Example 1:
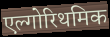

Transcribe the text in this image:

एल्गोरिथमिक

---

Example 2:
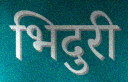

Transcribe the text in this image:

भिदुरी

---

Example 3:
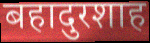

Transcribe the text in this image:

बहादुरशाह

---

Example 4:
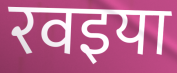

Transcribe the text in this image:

रवइया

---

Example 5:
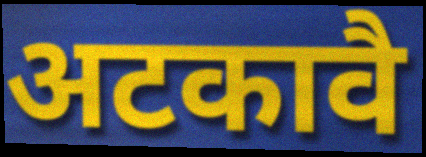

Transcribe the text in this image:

अटकावै